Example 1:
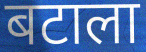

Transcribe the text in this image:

बटाला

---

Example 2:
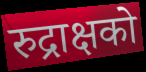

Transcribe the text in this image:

रुद्राक्षको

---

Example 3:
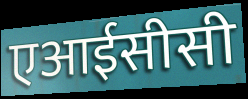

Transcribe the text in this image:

एआईसीसी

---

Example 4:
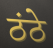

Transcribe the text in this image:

ठंठे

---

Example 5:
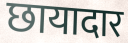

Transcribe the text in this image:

छायादार